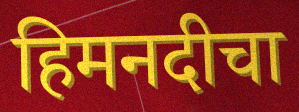
हिमनदीचा